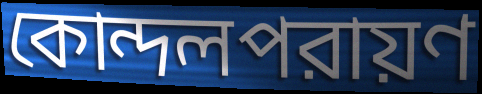
কোন্দলপরায়ণ